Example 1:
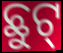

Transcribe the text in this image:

ଛୁଟ୍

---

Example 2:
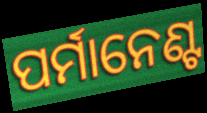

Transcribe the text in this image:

ପର୍ମାନେଣ୍ଟ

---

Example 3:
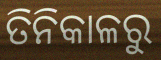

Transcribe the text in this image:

ତିନିକାଳରୁ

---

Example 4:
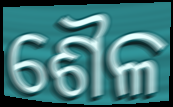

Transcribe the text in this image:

ଶୈଳ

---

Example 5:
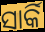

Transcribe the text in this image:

ସାର୍କି